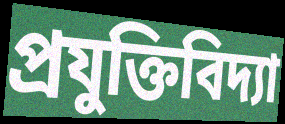
প্রযুক্তিবিদ্যা